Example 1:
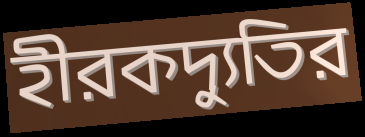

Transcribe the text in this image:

হীরকদ্যুতির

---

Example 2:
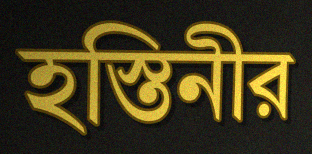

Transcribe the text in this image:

হস্তিনীর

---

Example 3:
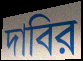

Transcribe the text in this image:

দাবির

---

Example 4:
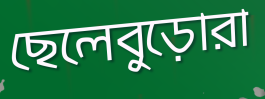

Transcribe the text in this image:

ছেলেবুড়োরা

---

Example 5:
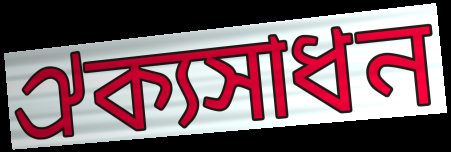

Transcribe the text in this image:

ঐক্যসাধন